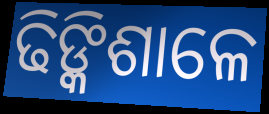
ଢିଙ୍କିଶାଳେ